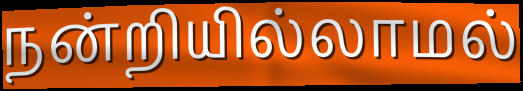
நன்றியில்லாமல்